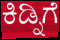
ಕಿಡ್ನಿಗೆ